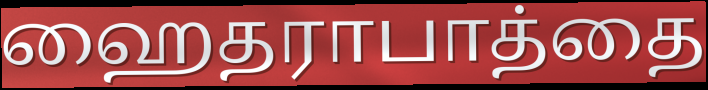
ஹைதராபாத்தை